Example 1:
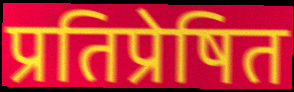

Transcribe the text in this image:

प्रतिप्रेषित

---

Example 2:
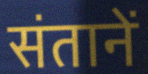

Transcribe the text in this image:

संतानें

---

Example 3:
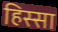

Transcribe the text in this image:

हिस्सा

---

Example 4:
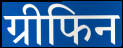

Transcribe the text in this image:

ग्रीफिन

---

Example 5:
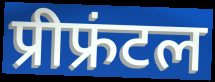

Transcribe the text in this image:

प्रीफ्रंटल